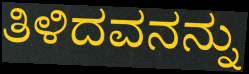
ತಿಳಿದವನನ್ನು